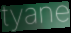
tyane